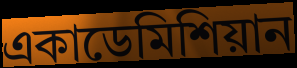
একাডেমিশিয়ান